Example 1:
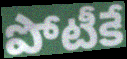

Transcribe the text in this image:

పోటీకే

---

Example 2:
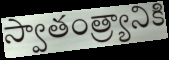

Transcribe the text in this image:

స్వాతంత్ర్యానికి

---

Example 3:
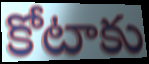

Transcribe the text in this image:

కోటాకు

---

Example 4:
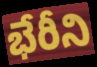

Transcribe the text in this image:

భేరీని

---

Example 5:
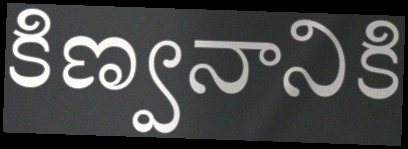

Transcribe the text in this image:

కిణ్వనానికి